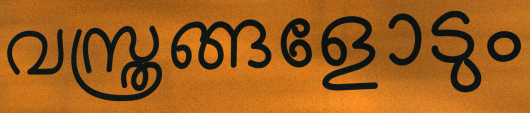
വസ്ത്രങ്ങളോടും